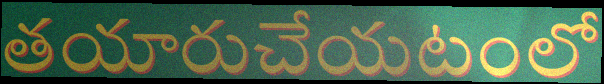
తయారుచేయటంలో